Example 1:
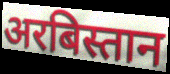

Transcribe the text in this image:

अरबिस्तान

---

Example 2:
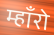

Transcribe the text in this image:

म्हाँरो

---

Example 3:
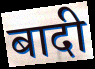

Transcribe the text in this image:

बादी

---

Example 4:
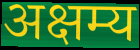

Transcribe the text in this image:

अक्षम्य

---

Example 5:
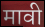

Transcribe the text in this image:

मावी